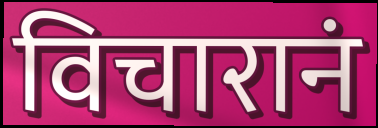
विचारानं